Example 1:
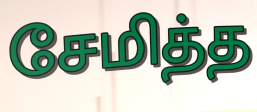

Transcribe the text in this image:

சேமித்த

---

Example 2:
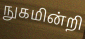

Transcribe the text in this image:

நுகமின்றி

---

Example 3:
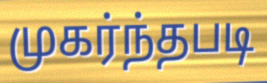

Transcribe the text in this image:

முகர்ந்தபடி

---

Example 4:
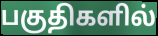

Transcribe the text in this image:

பகுதிகளில்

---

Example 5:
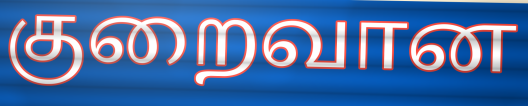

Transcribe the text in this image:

குறைவான